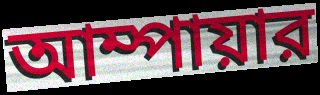
আম্পায়ার